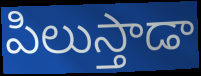
పిలుస్తాడా